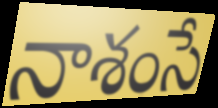
నాశంసే